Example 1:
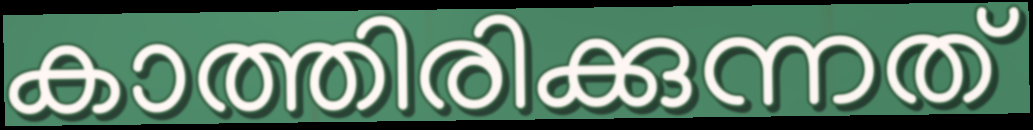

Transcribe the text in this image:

കാത്തിരിക്കുന്നത്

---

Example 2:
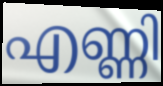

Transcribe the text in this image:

എണ്ണി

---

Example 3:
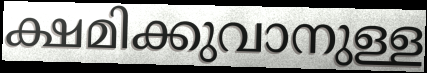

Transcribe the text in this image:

ക്ഷമിക്കുവാനുള്ള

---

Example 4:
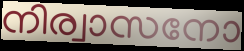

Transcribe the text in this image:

നിര്വാസനോ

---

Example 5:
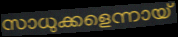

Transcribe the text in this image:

സാധുക്കളെന്നായ്